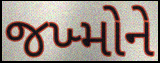
જખ્મોને